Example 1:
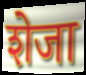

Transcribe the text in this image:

शेजा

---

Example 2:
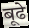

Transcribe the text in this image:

बूढे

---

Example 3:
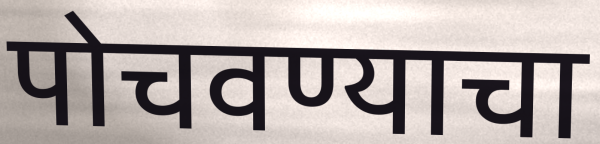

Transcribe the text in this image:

पोचवण्याचा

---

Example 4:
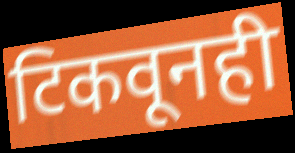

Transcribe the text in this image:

टिकवूनही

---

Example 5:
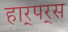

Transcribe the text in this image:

हार्पर्स